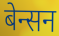
बेन्सन